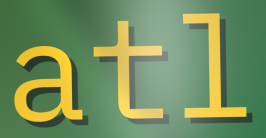
atl